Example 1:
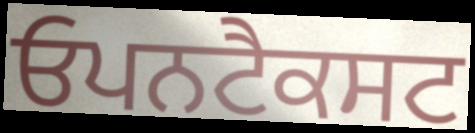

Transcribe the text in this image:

ਓਪਨਟੈਕਸਟ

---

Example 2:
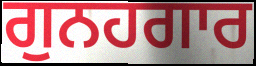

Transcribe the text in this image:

ਗੁਨਹਗਾਰ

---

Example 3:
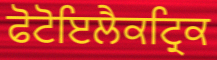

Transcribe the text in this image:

ਫੋਟੋਇਲੈਕਟ੍ਰਿਕ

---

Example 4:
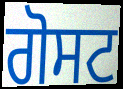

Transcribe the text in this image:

ਗੋਸਟ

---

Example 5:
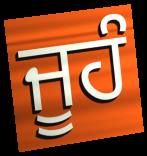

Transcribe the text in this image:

ਜੂਹੰ